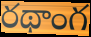
రథాంగ